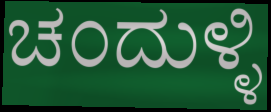
ಚಂದುಳ್ಳಿ